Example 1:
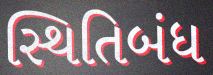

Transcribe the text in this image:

સ્થિતિબંધ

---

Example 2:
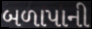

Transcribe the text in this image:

બળાપાની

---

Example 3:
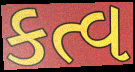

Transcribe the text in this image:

કત્વ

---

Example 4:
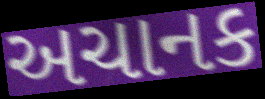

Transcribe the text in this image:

અચાનક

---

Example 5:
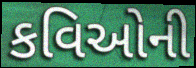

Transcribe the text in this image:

કવિઓની